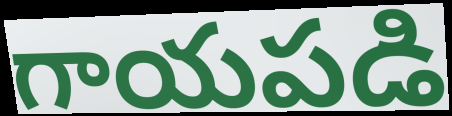
గాయపడి